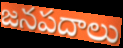
జనపదాలు